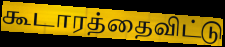
கூடாரத்தைவிட்டு